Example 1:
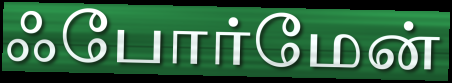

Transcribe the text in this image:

ஃபோர்மேன்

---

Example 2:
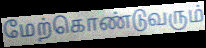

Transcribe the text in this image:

மேற்கொண்டுவரும்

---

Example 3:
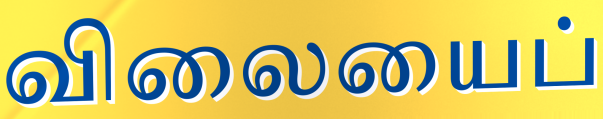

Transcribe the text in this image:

விலையைப்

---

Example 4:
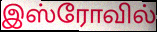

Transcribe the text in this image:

இஸ்ரோவில்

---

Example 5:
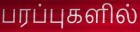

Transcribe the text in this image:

பரப்புகளில்